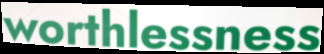
worthlessness